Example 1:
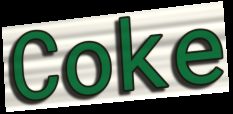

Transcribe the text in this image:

Coke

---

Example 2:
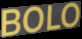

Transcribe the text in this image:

BOLO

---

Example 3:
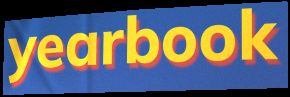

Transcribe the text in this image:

yearbook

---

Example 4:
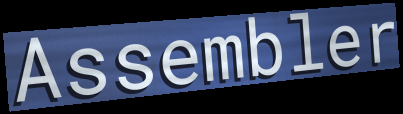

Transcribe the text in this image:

Assembler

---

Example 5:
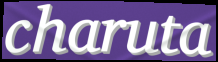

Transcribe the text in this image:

charuta